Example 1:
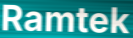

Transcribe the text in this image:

Ramtek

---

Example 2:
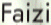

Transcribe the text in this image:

Faizi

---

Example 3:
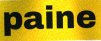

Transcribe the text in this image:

paine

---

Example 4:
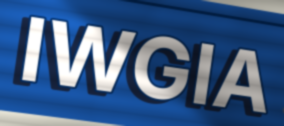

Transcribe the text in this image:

IWGIA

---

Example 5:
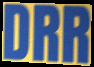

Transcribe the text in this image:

DRR